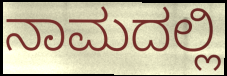
ನಾಮದಲ್ಲಿ